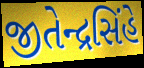
જીતેન્દ્રસિંહે